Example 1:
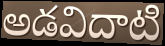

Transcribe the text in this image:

అడవిదాటి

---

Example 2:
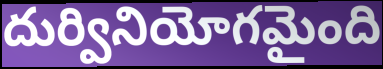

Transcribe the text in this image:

దుర్వినియోగమైంది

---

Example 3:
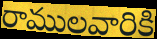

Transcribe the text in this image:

రాములవారికి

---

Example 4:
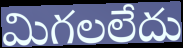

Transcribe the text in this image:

మిగలలేదు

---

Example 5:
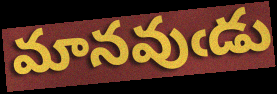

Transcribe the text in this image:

మానవుఁడు